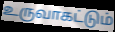
உருவாகட்டும்